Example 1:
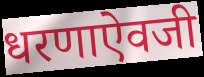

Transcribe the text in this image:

धरणाऐवजी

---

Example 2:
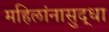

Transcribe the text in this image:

महिलांनासुद्धा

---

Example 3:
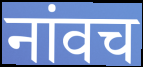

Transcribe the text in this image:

नांवच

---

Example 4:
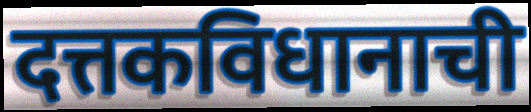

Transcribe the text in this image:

दत्तकविधानाची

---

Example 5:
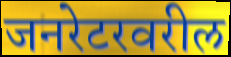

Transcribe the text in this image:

जनरेटरवरील